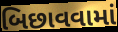
બિછાવવામાં